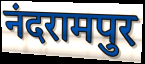
नंदरामपुर